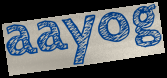
aayog